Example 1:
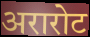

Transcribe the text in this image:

अरारोट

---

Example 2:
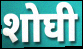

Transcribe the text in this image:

शोघी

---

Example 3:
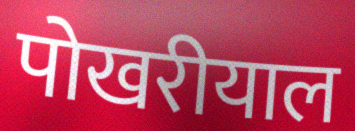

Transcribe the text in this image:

पोखरीयाल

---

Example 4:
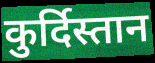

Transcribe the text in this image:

कुर्दिस्तान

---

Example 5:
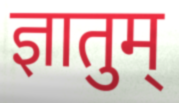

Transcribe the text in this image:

ज्ञातुम्